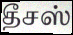
தீசஸ்